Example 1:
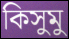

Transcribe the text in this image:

কিসুমু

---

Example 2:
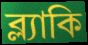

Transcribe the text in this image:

ব্ল্যাকি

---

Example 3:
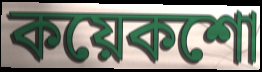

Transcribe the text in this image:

কয়েকশো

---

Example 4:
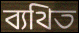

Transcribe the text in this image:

ব্যথিত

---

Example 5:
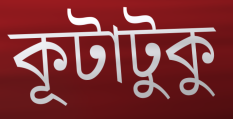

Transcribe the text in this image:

কূটাটুকু